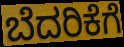
ಬೆದರಿಕೆಗೆ